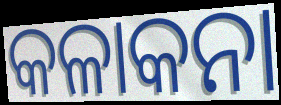
କଳାକନା